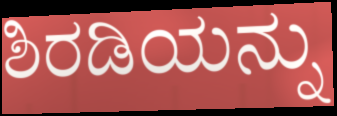
ಶಿರಡಿಯನ್ನು